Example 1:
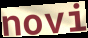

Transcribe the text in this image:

novi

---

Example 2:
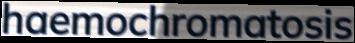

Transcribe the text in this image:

haemochromatosis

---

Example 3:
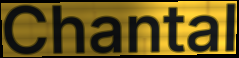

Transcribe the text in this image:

Chantal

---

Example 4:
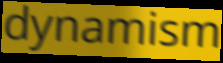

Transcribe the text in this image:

dynamism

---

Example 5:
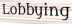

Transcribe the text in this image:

Lobbying